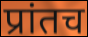
प्रांतच